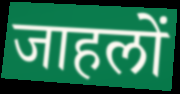
जाहलों